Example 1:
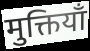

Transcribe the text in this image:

मुक्तियाँ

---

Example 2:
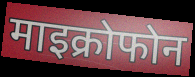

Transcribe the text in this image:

माइक्रोफोन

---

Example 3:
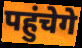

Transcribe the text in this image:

पहुंचेगे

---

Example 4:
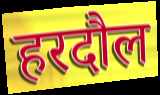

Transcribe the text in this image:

हरदौल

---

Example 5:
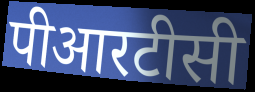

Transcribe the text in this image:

पीआरटीसी